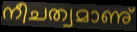
നീചത്വമാണു്